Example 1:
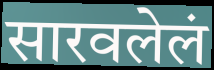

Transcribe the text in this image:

सारवलेलं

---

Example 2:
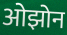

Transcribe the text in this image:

ओझोन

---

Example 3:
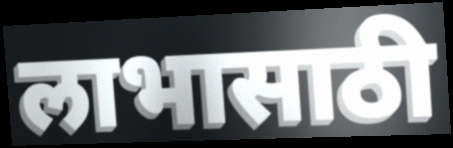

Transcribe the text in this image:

लाभासाठी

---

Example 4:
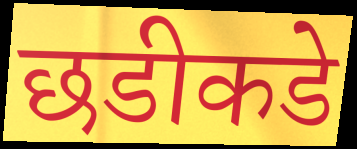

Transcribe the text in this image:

छडीकडे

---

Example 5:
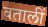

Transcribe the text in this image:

वतालीं